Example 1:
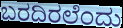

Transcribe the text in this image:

ಬರದಿರಲೆಂದು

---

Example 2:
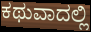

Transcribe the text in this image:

ಕಥುವಾದಲ್ಲಿ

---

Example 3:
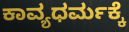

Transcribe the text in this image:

ಕಾವ್ಯಧರ್ಮಕ್ಕೆ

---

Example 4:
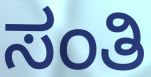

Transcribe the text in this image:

ಸಂತಿ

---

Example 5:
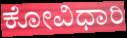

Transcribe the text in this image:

ಕೋವಿಧಾರಿ